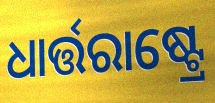
ଧାର୍ତ୍ତରାଷ୍ଟ୍ରେ